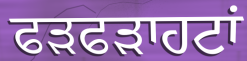
ਫੜਫੜਾਹਟਾਂ